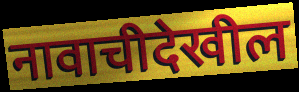
नावाचीदेखील